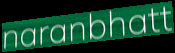
naranbhatt